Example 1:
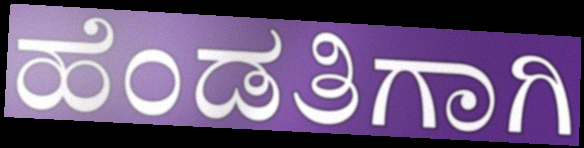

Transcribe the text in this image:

ಹೆಂಡತಿಗಾಗಿ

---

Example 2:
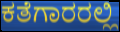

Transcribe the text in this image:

ಕತೆಗಾರರಲ್ಲಿ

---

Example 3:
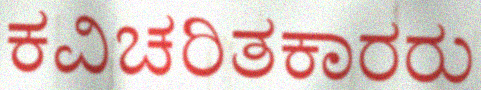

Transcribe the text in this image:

ಕವಿಚರಿತಕಾರರು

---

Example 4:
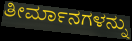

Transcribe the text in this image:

ತೀರ್ಮಾನಗಳನ್ನು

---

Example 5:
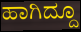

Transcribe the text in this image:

ಹಾಗಿದ್ದೂ